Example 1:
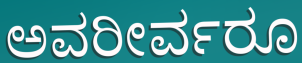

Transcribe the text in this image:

ಅವರೀರ್ವರೂ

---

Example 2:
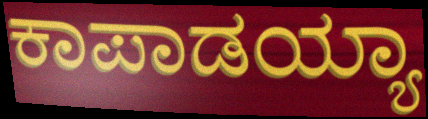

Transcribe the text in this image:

ಕಾಪಾಡಯ್ಯಾ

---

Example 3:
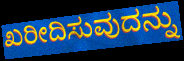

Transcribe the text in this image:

ಖರೀದಿಸುವುದನ್ನು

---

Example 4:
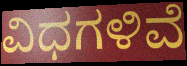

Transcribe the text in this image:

ವಿಧಗಳಿವೆ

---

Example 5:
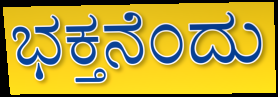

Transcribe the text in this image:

ಭಕ್ತನೆಂದು